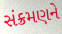
સંક્રમણને